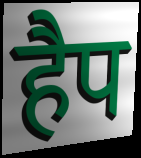
हैप